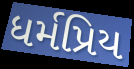
ધર્મપ્રિય